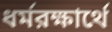
ধর্মরক্ষার্থে